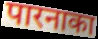
पारनाका